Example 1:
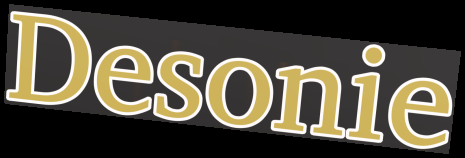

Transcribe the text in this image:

Desonie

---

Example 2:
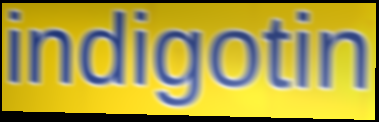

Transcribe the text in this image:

indigotin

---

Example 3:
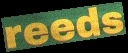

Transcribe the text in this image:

reeds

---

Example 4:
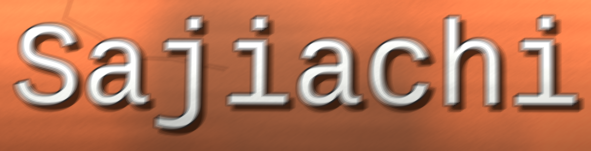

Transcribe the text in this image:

Sajiachi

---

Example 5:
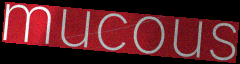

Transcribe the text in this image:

mucous